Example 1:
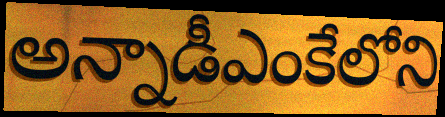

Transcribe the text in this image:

అన్నాడీఎంకేలోని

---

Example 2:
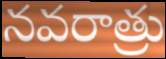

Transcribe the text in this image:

నవరాత్రు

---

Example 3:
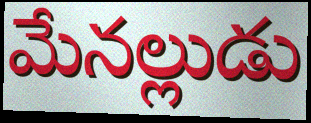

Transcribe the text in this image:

మేనల్లుడు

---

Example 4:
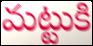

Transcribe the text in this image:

మట్టుకి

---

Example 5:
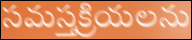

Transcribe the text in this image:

సమస్తక్రియలను